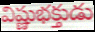
విష్ణుభక్తుడు